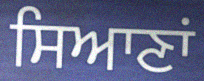
ਸਿਆਣਾਂ